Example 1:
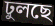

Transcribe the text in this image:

ঢুলছে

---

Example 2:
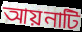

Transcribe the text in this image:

আয়নাটি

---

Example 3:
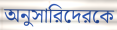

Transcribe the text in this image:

অনুসারিদেরকে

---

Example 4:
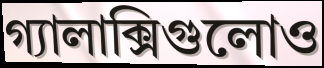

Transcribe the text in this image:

গ্যালাক্সিগুলোও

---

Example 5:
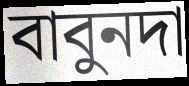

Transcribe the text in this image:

বাবুনদা